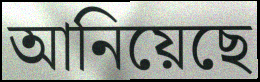
আনিয়েছে